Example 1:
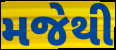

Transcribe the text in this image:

મજેથી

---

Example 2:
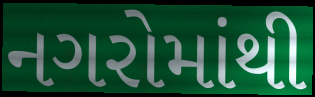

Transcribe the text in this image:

નગરોમાંથી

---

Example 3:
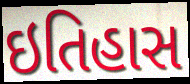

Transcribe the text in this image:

ઇતિહાસ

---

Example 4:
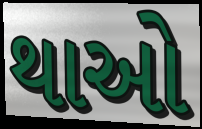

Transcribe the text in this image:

થાઓ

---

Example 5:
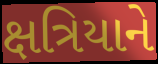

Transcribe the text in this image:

ક્ષત્રિયાને